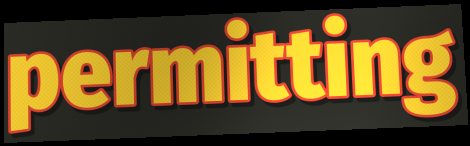
permitting